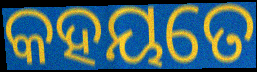
କହୟତେ